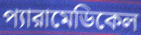
প্যারামেডিকেল